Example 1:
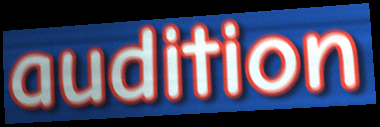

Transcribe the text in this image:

audition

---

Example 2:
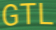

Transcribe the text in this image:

GTL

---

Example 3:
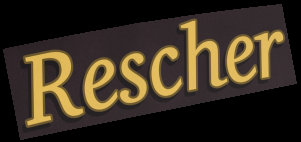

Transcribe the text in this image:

Rescher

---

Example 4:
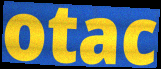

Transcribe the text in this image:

otac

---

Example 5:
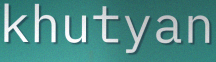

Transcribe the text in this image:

khutyan